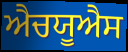
ਐਚਯੂਐਸ